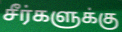
சீர்களுக்கு